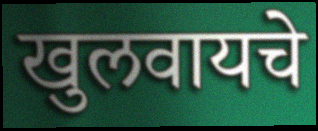
खुलवायचे